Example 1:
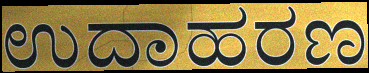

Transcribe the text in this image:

ಉದಾಹರಣ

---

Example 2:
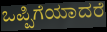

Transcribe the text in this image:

ಒಪ್ಪಿಗೆಯಾದರೆ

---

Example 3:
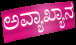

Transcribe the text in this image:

ಅವ್ಯಾಖ್ಯಾನ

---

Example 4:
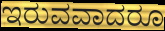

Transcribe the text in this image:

ಇರುವವಾದರೂ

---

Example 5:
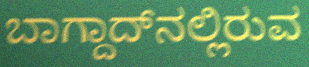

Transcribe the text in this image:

ಬಾಗ್ದಾದ್‌ನಲ್ಲಿರುವ